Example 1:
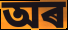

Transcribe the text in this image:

অৰ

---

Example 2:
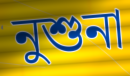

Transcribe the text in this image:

নুশুনা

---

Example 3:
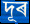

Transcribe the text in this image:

দূৰ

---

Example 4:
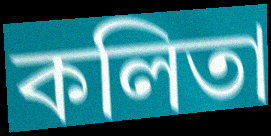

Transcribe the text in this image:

কলিতা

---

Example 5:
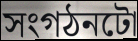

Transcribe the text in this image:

সংগঠনটো